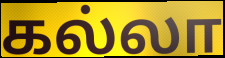
கல்லா